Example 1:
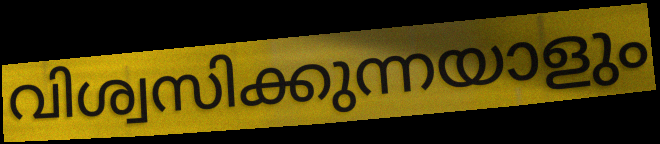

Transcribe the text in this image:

വിശ്വസിക്കുന്നയാളും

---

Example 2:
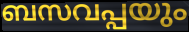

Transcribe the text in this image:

ബസവപ്പയും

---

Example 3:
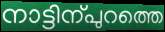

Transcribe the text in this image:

നാട്ടിന്പുറത്തെ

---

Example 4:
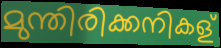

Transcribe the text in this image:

മുന്തിരിക്കനികള്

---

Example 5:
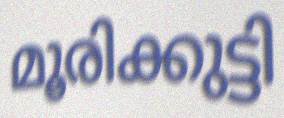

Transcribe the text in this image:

മൂരിക്കുട്ടി